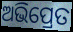
ଅଭିପ୍ରେତ